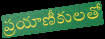
ప్రయాణీకులతో